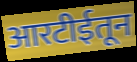
आरटीईतून